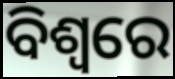
ବିଶ୍ଵରେ